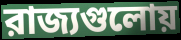
রাজ্যগুলোয়